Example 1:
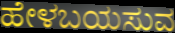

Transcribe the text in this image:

ಹೇಳಬಯಸುವ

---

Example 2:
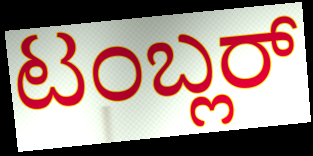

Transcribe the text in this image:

ಟಂಬ್ಲರ್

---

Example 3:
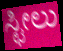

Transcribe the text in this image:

ಸ್ಟೀಲು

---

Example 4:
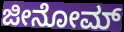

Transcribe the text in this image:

ಜೀನೋಮ್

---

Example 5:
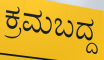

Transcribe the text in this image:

ಕ್ರಮಬದ್ದ